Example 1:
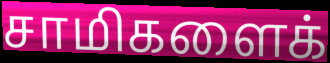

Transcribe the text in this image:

சாமிகளைக்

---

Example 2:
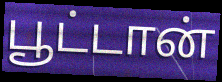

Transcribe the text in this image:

பூட்டான்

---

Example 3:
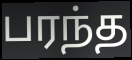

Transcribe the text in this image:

பரந்த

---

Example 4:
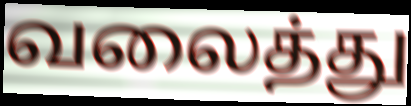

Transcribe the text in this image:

வலைத்து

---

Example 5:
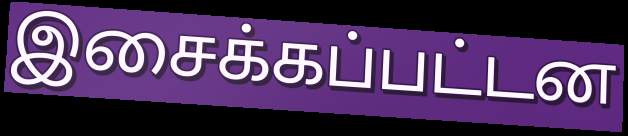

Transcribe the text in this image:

இசைக்கப்பட்டன